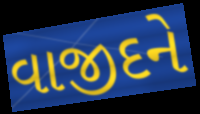
વાજીદને